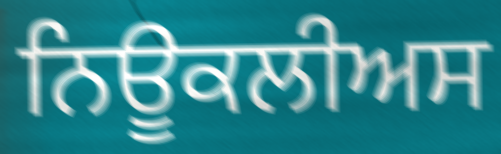
ਨਿਊਕਲੀਅਸ